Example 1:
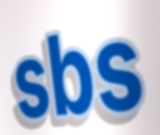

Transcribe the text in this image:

sbs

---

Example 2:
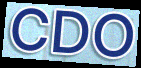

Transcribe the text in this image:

CDO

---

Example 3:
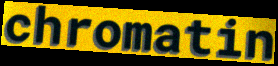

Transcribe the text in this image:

chromatin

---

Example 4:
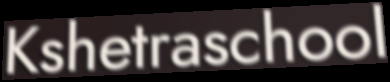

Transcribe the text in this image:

Kshetraschool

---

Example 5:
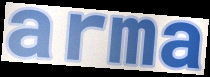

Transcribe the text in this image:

arma